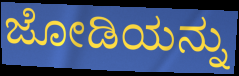
ಜೋಡಿಯನ್ನು